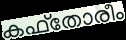
കഫ്തോരീം